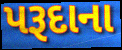
પરૂદાના